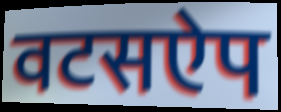
वटसऐप